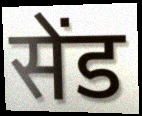
सेंड